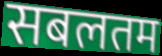
सबलतम